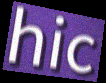
hic